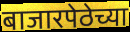
बाजारपेठेच्या